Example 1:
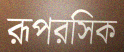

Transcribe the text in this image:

রূপরসিক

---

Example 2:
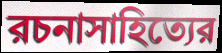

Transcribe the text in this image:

রচনাসাহিত্যের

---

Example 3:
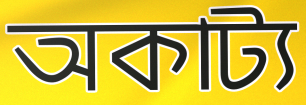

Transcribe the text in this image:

অকাট্য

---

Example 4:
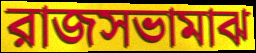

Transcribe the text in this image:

রাজসভামাঝ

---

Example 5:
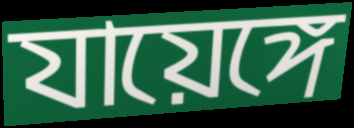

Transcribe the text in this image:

যায়েঙ্গে